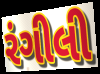
રંગીલી